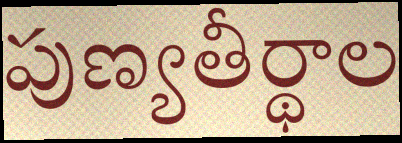
పుణ్యతీర్థాల